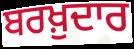
ਬਰਖ਼ੁਦਾਰ